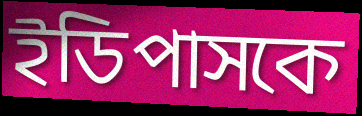
ইডিপাসকে